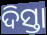
ଦିସ୍ତା